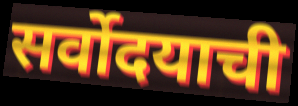
सर्वोदयाची